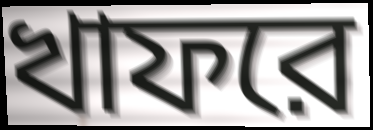
খাফরে